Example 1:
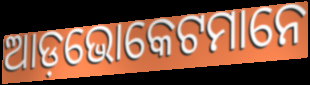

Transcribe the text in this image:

ଆଡ଼ଭୋକେଟମାନେ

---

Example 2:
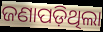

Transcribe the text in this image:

ଜଣାପଡ଼ିଥିଲା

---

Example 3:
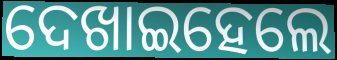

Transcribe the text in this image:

ଦେଖାଇହେଲେ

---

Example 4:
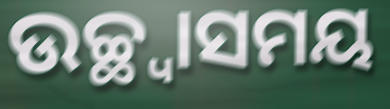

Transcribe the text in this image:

ଉଚ୍ଛ୍ଵାସମୟ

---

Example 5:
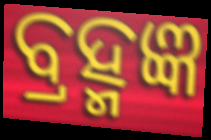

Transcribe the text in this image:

ବ୍ରହ୍ମଜ୍ଞ